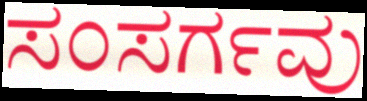
ಸಂಸರ್ಗವು